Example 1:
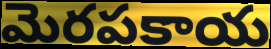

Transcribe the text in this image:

మెరపకాయ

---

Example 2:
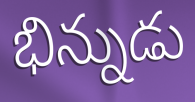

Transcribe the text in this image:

భిన్నుడు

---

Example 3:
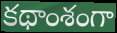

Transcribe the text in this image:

కథాంశంగా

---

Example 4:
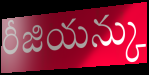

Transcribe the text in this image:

రీజియన్కు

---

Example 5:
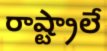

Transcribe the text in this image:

రాష్ట్రాలే